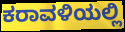
ಕರಾವಳಿಯಲ್ಲಿ